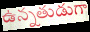
ఉన్నతుడుగా